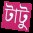
টাটু